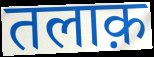
तलाक़